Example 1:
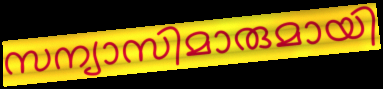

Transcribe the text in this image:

സന്യാസിമാരുമായി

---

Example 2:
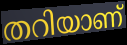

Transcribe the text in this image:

തറിയാണ്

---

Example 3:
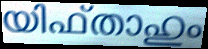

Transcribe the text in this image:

യിഫ്താഹും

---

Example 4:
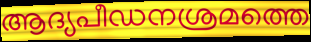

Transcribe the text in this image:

ആദ്യപീഡനശ്രമത്തെ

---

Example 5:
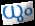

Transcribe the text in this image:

ധും